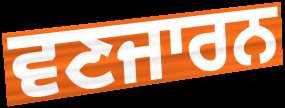
ਵਣਜਾਰਨ